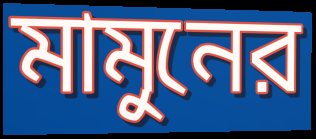
মামুনের